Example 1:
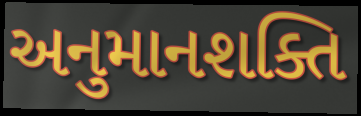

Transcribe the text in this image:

અનુમાનશક્તિ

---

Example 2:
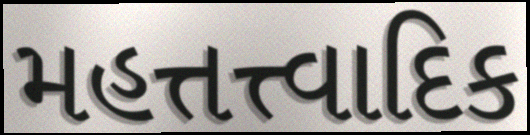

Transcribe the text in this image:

મહત્તત્ત્વાદિક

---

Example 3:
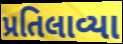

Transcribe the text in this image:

પ્રતિલાવ્યા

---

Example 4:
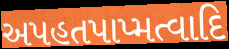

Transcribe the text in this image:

અપહતપાપ્મત્વાદિ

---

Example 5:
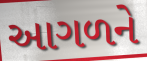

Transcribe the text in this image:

આગળને